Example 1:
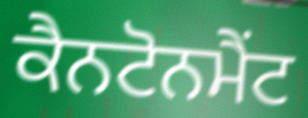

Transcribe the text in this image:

ਕੈਨਟੋਨਮੈਂਟ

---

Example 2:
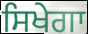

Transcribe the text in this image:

ਸਿਖੇਗਾ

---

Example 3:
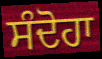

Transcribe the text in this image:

ਸੰਦੋਹਾ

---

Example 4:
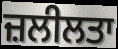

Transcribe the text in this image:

ਜ਼ਲੀਲਤਾ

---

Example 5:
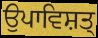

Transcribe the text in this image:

ਉਪਾਵਿਸ਼ਤ੍